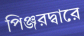
পিঞ্জরদ্বারে